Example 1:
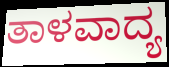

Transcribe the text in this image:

ತಾಳವಾದ್ಯ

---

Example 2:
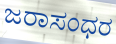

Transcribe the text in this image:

ಜರಾಸಂಧರ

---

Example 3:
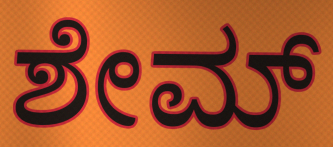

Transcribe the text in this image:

ಶೇಮ್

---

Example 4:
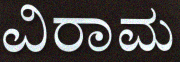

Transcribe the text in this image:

ವಿರಾಮ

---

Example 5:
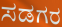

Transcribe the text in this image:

ಸಡಗರ